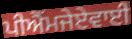
ਪੀਐੱਮਜੇਏਵਾਈ